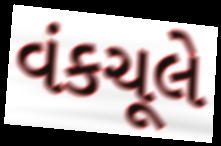
વંકચૂલે